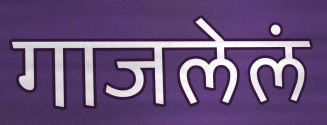
गाजलेलं